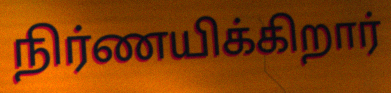
நிர்ணயிக்கிறார்